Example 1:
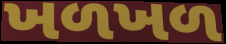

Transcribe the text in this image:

ખળખળ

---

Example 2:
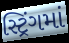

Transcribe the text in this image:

સ્ટ્રિંગમાં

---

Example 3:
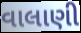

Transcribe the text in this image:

વાલાણી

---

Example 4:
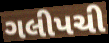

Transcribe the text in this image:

ગલીપચી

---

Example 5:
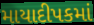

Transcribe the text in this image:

માયાદીપકમાં